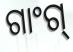
ଗାଂଗ୍